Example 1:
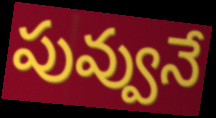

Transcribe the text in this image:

పువ్వునే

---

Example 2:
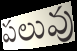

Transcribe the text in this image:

పలువు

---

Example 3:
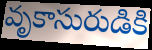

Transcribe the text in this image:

వృకాసురుడికి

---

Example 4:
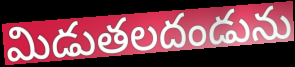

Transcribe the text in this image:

మిడుతలదండును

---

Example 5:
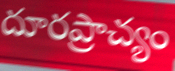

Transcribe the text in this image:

దూరప్రాచ్యం